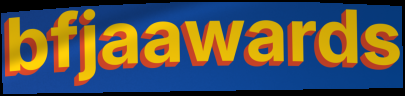
bfjaawards